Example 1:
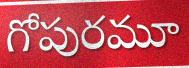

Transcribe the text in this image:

గోపురమూ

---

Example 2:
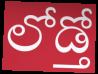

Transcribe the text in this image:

లోడ్తో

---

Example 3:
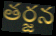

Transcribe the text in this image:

తర్జన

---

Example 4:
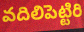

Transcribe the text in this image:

వదిలిపెట్టిరి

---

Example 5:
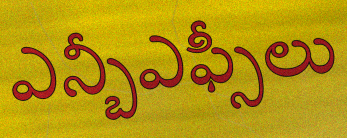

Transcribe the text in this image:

ఎన్బీఎఫ్సీలు